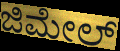
ಜಿಮೇಲ್